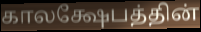
காலக்ஷேபத்தின்